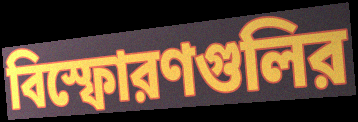
বিস্ফোরণগুলির